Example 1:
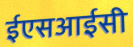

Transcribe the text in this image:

ईएसआईसी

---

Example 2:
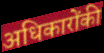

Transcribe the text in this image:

अधिकारोंकी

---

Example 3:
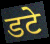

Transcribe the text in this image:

डटे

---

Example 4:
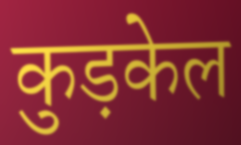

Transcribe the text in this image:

कुड़केल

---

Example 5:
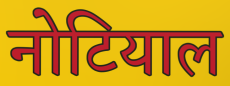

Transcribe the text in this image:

नोटियाल